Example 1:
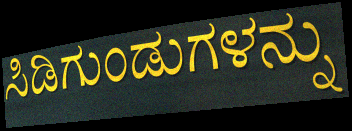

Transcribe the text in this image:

ಸಿಡಿಗುಂಡುಗಳನ್ನು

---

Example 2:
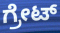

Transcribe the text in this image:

ಗ್ರೇಟ್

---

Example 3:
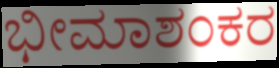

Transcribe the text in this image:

ಭೀಮಾಶಂಕರ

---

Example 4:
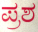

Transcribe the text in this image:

ಪ್ರಶ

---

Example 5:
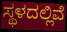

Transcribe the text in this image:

ಸ್ಥಳದಲ್ಲಿವೆ